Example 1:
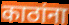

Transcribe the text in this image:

काठांना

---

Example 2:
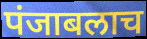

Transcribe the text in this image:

पंजाबलाच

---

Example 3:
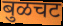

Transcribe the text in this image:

बुळचट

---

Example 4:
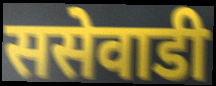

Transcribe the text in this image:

ससेवाडी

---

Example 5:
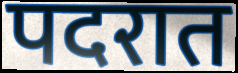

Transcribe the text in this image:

पदरात